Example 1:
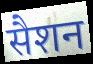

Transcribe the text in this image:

सैशन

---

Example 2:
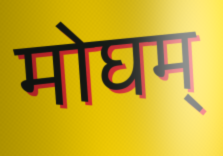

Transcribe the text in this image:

मोघम्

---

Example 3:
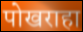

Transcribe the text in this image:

पोखराहा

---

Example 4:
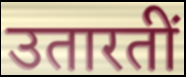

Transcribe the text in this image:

उतारतीं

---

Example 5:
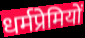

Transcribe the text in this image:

धर्मप्रेमियों